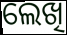
ଲେଖି